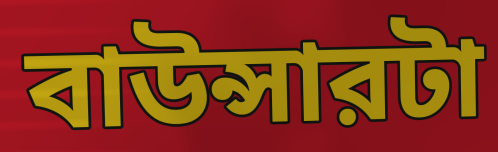
বাউন্সারটা